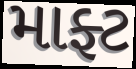
માફ્ટ